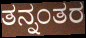
ತನ್ನಂತರ